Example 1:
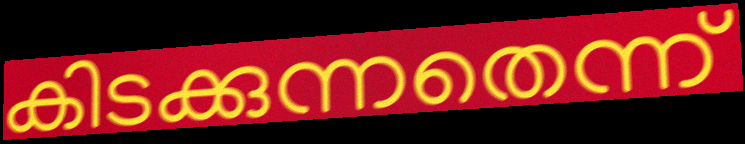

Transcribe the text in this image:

കിടക്കുന്നതെന്ന്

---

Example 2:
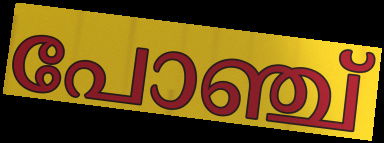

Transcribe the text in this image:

പോഞ്ച്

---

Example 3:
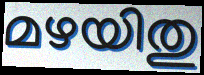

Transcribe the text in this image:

മഴയിതു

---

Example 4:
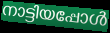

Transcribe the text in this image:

നാട്ടിയപ്പോൾ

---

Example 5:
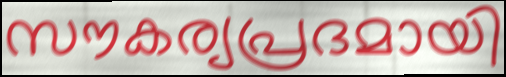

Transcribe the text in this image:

സൗകര്യപ്രദമായി